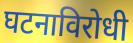
घटनाविरोधी